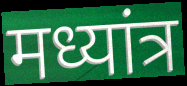
मध्यांत्र